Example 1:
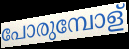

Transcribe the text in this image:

പോരുമ്പോള്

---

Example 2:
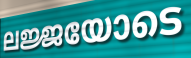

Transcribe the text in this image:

ലജ്ജയോടെ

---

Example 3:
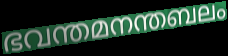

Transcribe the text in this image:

ഭവന്തമനന്തബലം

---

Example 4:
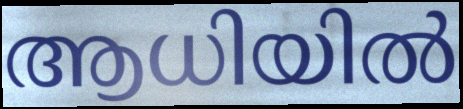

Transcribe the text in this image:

ആധിയിൽ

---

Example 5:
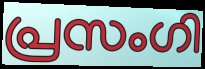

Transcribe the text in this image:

പ്രസംഗി